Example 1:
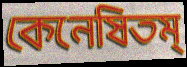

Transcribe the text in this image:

কেনেষিতম্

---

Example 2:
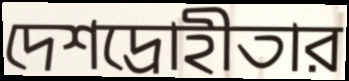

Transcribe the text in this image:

দেশদ্রোহীতার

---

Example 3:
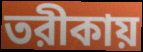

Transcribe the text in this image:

তরীকায়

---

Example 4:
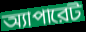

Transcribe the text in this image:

অ্যাপারেট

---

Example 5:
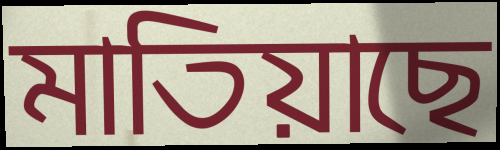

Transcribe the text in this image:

মাতিয়াছে